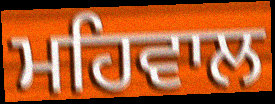
ਮਹਿਵਾਲ